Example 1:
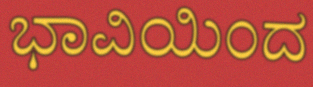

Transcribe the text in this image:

ಭಾವಿಯಿಂದ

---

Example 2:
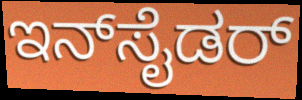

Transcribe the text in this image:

ಇನ್‌ಸೈಡರ್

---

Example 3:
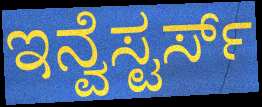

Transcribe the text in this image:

ಇನ್ವೆಸ್ಟರ್ಸ್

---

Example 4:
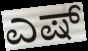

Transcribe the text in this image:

ಎಷ್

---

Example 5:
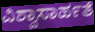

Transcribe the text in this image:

ವಿಶ್ವಾಸಾರ್ಹತೆ